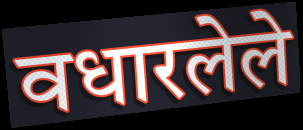
वधारलेले